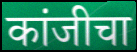
कांजीचा